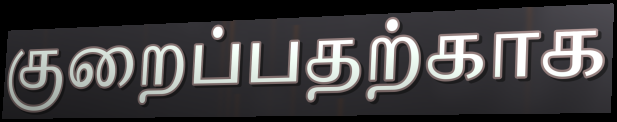
குறைப்பதற்காக